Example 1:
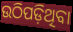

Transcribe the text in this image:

ଉଠିପଡ଼ିଥିବା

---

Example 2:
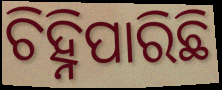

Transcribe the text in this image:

ଚିହ୍ନିପାରିଛି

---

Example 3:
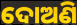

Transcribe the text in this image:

ଦୋଅଣି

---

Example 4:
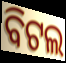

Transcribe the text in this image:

ବିଟଲ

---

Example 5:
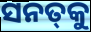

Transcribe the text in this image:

ସନତ୍‍କୁ